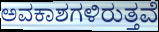
ಅವಕಾಶಗಳಿರುತ್ತವೆ